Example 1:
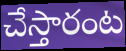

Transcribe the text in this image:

చేస్తారంట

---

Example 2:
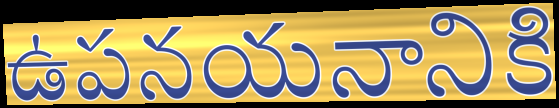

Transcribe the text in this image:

ఉపనయనానికి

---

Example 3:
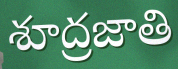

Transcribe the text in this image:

శూద్రజాతి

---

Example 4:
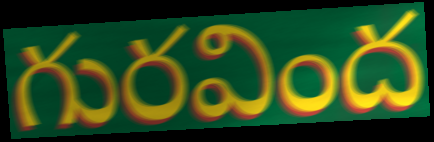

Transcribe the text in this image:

గురవింద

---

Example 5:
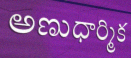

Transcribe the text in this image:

అణుధార్మిక